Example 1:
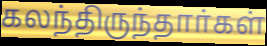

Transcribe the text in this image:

கலந்திருந்தார்கள்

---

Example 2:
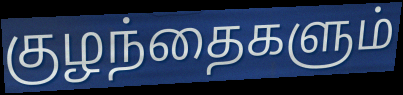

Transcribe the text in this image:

குழந்தைகளும்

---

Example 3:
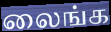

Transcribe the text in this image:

லைங்க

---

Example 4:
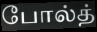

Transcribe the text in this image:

போல்த்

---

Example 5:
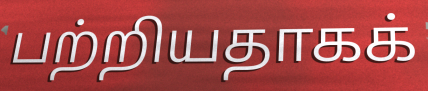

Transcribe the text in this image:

பற்றியதாகக்